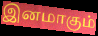
இனமாகும்